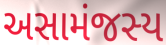
અસામંજસ્ય